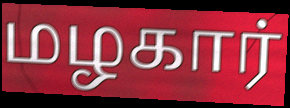
மழகார்